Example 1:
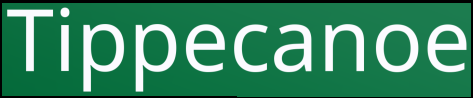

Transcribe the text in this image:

Tippecanoe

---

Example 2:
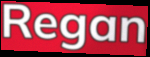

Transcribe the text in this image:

Regan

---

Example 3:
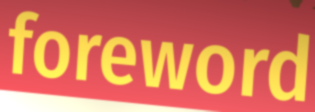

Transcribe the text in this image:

foreword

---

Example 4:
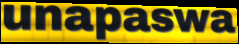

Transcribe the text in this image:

unapaswa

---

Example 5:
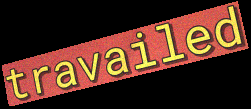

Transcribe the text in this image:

travailed